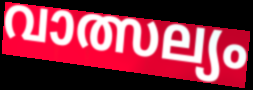
വാത്സല്യം